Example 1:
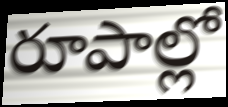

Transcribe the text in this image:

రూపాల్లో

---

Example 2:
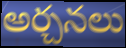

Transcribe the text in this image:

అర్చనలు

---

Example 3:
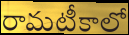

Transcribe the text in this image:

రామటీకాలో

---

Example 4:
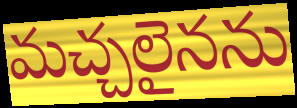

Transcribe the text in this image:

మచ్చలైనను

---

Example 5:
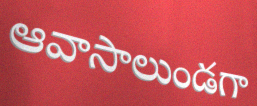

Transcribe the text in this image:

ఆవాసాలుండగా